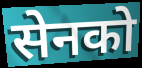
सेनको